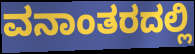
ವನಾಂತರದಲ್ಲಿ